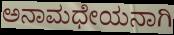
ಅನಾಮಧೇಯನಾಗಿ